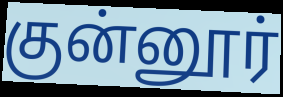
குன்னூர்